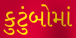
કુટુંબોમાં